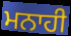
ਮਨਾਹੀ